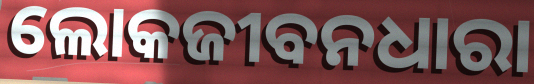
ଲୋକଜୀବନଧାରା